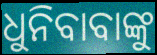
ଧୁନିବାବାଙ୍କୁ